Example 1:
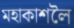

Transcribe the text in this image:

মহাকাশলৈ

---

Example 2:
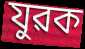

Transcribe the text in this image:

যুৱক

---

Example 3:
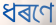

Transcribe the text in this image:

ধৰণে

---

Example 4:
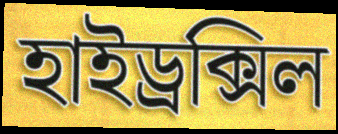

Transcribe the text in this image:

হাইড্ৰক্সিল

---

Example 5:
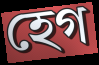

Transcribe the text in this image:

হেগ